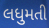
લધુમતી